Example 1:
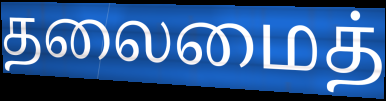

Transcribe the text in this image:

தலைமைத்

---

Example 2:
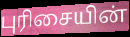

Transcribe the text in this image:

புரிசையின்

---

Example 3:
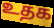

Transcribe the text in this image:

உதக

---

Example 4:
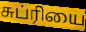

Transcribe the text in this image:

சுப்ரியை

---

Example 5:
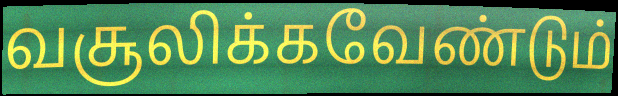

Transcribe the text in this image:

வசூலிக்கவேண்டும்